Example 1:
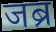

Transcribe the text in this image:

जब्र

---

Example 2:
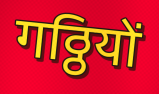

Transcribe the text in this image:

गठ्ठियों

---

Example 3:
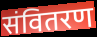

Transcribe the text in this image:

संवितरण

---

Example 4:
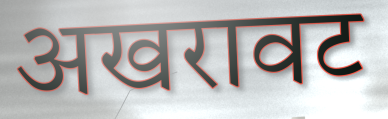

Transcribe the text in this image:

अखरावट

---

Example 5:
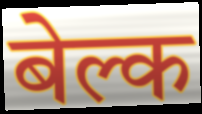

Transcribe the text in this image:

बेल्क